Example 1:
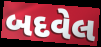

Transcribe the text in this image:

બદવેલ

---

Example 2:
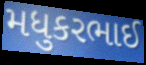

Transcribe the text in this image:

મધુકરભાઈ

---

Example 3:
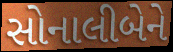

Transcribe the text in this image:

સોનાલીબેને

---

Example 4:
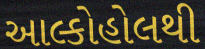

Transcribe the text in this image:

આલ્કોહોલથી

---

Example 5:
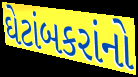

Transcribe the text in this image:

ઘેટાંબકરાંનો